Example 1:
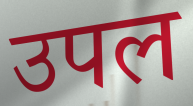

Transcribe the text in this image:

उपल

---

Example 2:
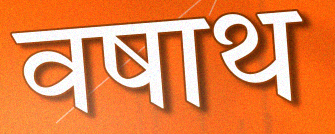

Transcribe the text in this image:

वषाथ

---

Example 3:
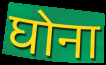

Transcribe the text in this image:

घोना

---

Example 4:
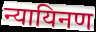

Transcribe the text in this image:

न्यायिनण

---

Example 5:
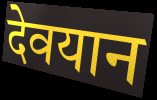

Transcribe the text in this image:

देवयान